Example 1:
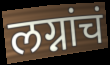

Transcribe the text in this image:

लग्नांचं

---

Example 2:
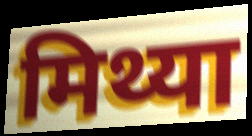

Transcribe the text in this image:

मिथ्या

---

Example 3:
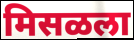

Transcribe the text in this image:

मिसळला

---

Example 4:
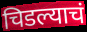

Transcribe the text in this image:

चिडल्याचं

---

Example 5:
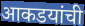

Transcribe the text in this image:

आकडयांची